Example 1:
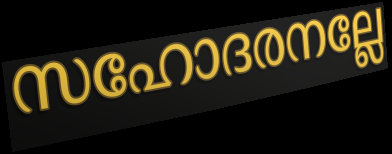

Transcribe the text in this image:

സഹോദരനല്ലേ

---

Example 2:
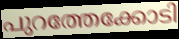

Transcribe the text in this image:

പുറത്തേക്കോടി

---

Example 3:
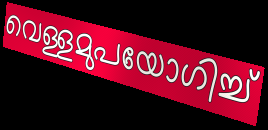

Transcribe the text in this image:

വെള്ളമുപയോഗിച്ച്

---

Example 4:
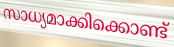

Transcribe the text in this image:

സാധ്യമാക്കിക്കൊണ്ട്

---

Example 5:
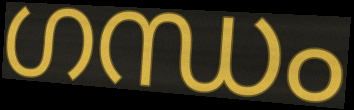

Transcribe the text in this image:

ഗന്ധം